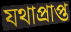
যথাপ্ৰাপ্ত